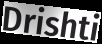
Drishti